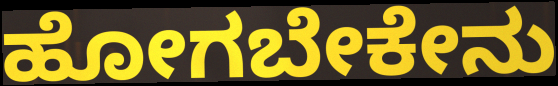
ಹೋಗಬೇಕೇನು